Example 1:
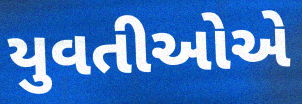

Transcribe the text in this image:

યુવતીઓએ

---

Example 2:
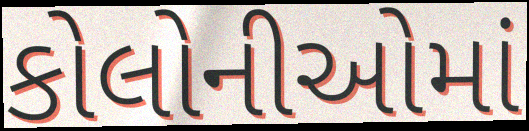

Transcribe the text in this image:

કોલોનીઓમાં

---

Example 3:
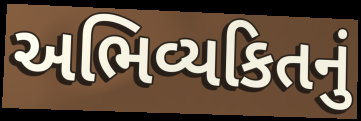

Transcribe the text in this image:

અભિવ્યકિતનું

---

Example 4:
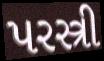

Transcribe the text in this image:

પરસ્ત્રી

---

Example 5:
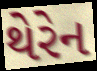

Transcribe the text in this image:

થેરેન